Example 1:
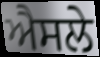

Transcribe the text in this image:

ਐਸਲੇ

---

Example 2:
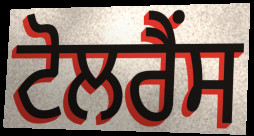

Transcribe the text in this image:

ਟੋਲਰੈਂਸ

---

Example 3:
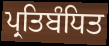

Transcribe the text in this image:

ਪ੍ਰਤਿਬੰਧਿਤ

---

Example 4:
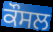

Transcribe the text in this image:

ਕੌਸਲ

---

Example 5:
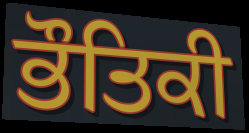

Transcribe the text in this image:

ਭੌਤਿਕੀ